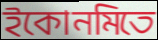
ইকোনমিতে